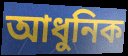
আধুনিক